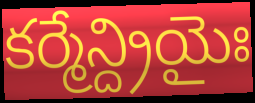
కర్మేన్ద్రియైః